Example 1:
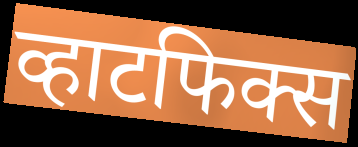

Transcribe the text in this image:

व्हाटफिक्स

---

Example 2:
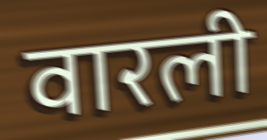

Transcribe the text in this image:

वारली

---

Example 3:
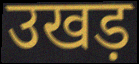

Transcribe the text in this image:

उखड़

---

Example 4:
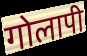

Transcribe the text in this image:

गोलापी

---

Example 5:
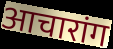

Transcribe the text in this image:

आचारांग